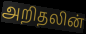
அறிதலின்